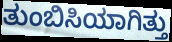
ತುಂಬಿಸಿಯಾಗಿತ್ತು